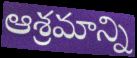
ఆశ్రమాన్ని